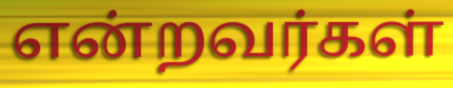
என்றவர்கள்